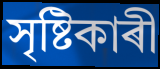
সৃষ্টিকাৰী